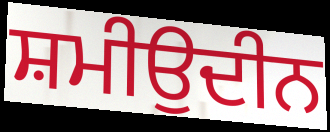
ਸ਼ਮੀਉਦੀਨ